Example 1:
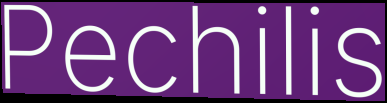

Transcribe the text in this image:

Pechilis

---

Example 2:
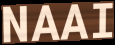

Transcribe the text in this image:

NAAI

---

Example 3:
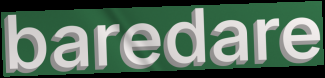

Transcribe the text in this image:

baredare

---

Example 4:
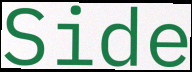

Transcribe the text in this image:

Side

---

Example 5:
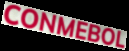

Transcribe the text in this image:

CONMEBOL